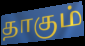
தாகும்